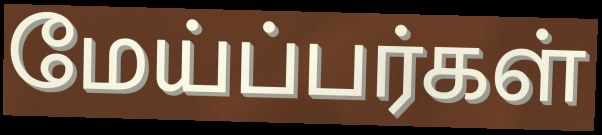
மேய்ப்பர்கள்